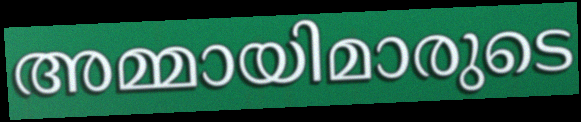
അമ്മായിമാരുടെ